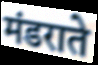
मंडराते